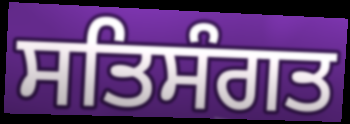
ਸਤਿਸੰਗਤ